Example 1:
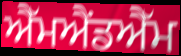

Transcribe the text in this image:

ਐੱਮਐਂਡਐੱਮ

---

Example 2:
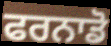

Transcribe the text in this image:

ਫਰਨਾਡੋ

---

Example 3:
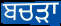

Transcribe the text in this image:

ਬਚੜਾ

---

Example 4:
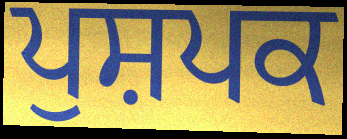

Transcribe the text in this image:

ਪੁਸ਼ਪਕ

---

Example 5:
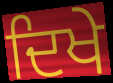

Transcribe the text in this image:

ਦਿਖੇ